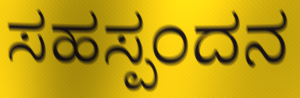
ಸಹಸ್ಪಂದನ